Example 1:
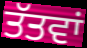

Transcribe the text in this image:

ਤੱਤਵਾਂ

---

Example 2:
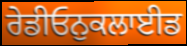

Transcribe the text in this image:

ਰੇਡੀਓਨੁਕਲਾਈਡ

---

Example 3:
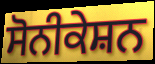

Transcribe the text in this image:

ਸੋਨੀਕੇਸ਼ਨ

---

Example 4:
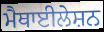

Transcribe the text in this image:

ਮੈਥਾਈਲੇਸ਼ਨ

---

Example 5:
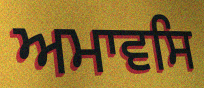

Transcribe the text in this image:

ਅਮਾਵਸਿ